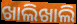
ଖାଲିଖାଲି